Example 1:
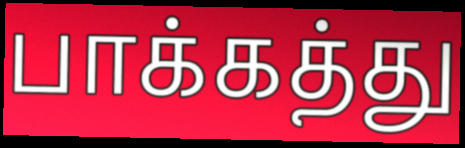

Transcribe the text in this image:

பாக்கத்து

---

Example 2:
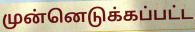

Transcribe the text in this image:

முன்னெடுக்கப்பட்ட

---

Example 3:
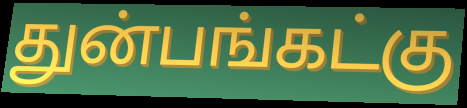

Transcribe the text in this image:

துன்பங்கட்கு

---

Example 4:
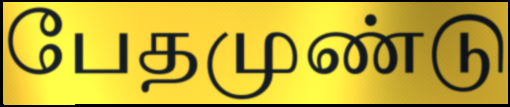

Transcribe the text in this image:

பேதமுண்டு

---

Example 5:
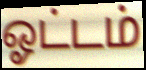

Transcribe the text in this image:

ஓட்டம்